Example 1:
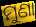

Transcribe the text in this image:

ମୁଣା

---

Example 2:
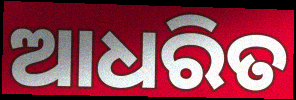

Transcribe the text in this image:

ଆଧରିତ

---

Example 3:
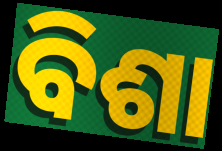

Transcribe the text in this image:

ବିଶା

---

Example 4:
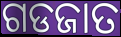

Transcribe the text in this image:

ଗଡଜାତ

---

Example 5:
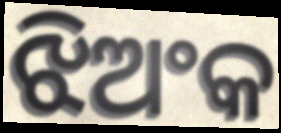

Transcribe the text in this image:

ଝିଅଂକ